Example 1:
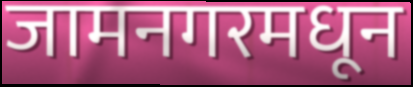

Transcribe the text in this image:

जामनगरमधून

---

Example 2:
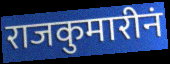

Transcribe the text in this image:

राजकुमारीनं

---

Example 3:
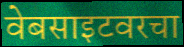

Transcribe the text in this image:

वेबसाइटवरचा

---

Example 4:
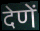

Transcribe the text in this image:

देणें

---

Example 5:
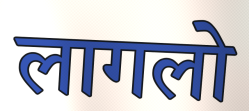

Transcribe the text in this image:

लागलो